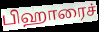
பிஹாரைச்